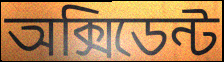
অক্সিডেন্ট